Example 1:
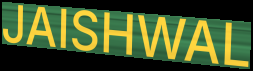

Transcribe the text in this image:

JAISHWAL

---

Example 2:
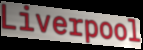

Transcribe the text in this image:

Liverpool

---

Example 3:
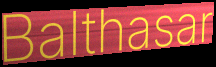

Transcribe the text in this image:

Balthasar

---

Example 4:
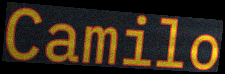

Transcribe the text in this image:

Camilo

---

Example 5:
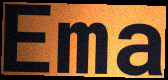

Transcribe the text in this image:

Ema